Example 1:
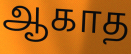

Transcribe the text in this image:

ஆகாத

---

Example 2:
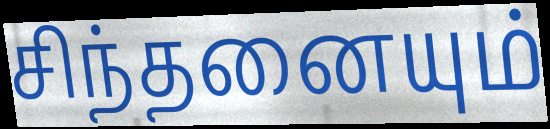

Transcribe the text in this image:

சிந்தனையும்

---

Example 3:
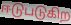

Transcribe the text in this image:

ஈடுபடுகிற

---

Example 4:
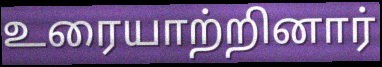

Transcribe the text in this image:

உரையாற்றினார்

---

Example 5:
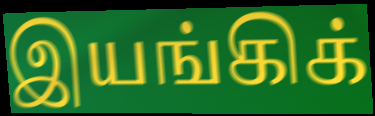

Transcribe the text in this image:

இயங்கிக்